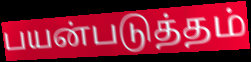
பயன்படுத்தம்